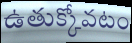
ఉతుక్కోవటం